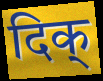
दिक्